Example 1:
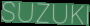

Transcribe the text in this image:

SUZUKI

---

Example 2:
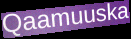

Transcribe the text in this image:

Qaamuuska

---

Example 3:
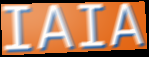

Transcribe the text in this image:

IAIA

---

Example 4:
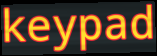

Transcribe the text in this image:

keypad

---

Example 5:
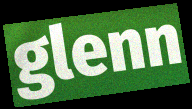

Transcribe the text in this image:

glenn